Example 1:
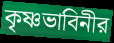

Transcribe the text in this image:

কৃষ্ণভাবিনীর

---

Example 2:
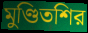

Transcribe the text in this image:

মুণ্ডিতশির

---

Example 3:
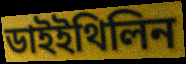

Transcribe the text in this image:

ডাইইথিলিন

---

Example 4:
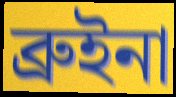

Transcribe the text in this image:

ব্রুইনা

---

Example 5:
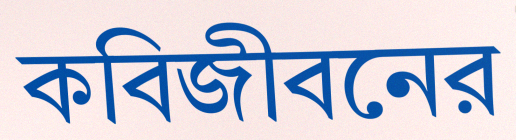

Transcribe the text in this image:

কবিজীবনের